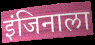
इंजिनाला